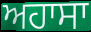
ਅਹਾਸਾ